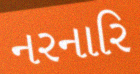
નરનારિ